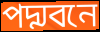
পদ্মবনে